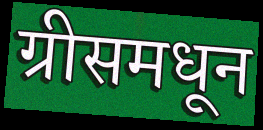
ग्रीसमधून